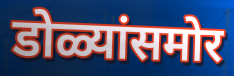
डोळ्यांसमोर